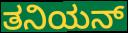
ತನಿಯನ್